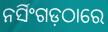
ନର୍ସିଂଗଡ଼ଠାରେ